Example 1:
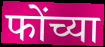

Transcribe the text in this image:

फोंच्या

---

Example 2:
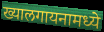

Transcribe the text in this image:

ख्यालगायनामध्ये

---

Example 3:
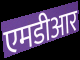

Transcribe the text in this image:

एमडीआर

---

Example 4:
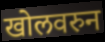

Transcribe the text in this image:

खोलवरुन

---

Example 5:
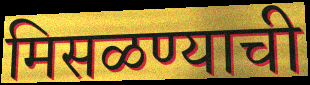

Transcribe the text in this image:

मिसळण्याची